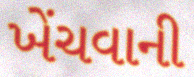
ખેંચવાની